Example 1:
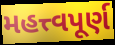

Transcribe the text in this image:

મહત્ત્વપૂર્ણ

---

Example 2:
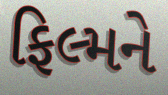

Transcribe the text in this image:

ફિલ્મને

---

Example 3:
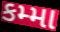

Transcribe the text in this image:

કમ્મા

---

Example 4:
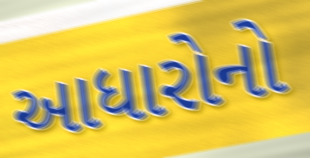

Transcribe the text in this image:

આધારોનો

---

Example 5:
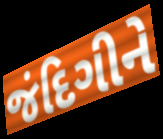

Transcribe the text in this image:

જંદિગીને